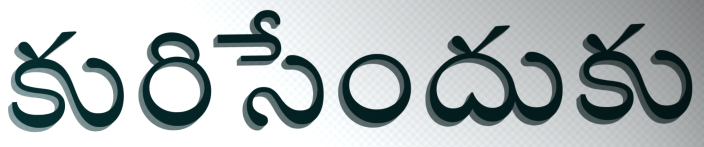
కురిసేందుకు